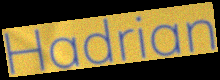
Hadrian